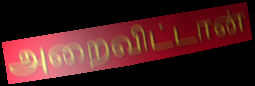
அறைவிட்டான்